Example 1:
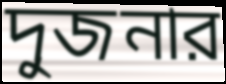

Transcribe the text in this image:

দুজনার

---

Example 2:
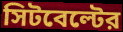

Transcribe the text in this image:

সিটবেল্টের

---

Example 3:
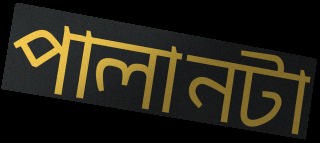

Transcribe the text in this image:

পালানটা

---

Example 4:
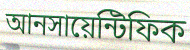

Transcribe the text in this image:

আনসায়েন্টিফিক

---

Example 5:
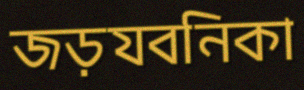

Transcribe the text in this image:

জড়যবনিকা